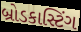
બ્રોડકાસ્ટિંગ